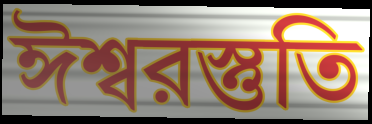
ঈশ্বরস্তুতি